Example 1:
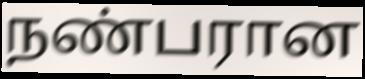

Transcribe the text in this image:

நண்பரான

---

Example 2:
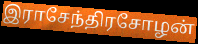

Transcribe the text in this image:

இராசேந்திரசோழன்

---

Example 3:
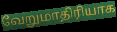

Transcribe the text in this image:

வேறுமாதிரியாக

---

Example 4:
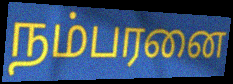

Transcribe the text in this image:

நம்பரனை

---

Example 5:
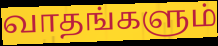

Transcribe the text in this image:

வாதங்களும்